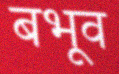
बभूव